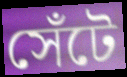
সেঁটে